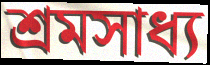
শ্ৰমসাধ্য